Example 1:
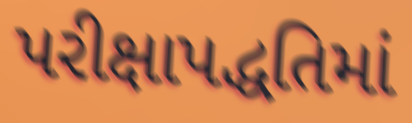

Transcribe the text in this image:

પરીક્ષાપદ્ધતિમાં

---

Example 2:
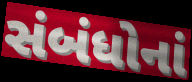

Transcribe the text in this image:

સંબંધોનાં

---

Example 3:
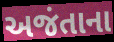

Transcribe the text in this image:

અજંતાના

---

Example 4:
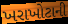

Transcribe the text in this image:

ખરાખોટાની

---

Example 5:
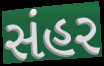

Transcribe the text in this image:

સંહર